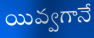
యివ్వగానే